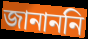
জানাননি